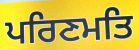
ਪਰਿਣਮਤਿ